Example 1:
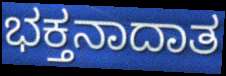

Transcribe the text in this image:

ಭಕ್ತನಾದಾತ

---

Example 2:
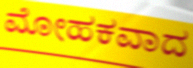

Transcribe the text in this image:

ಮೋಹಕವಾದ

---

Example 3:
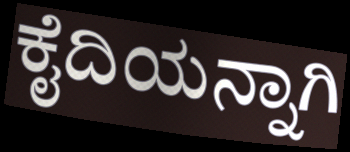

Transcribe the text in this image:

ಕೈದಿಯನ್ನಾಗಿ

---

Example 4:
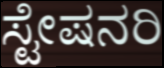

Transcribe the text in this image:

ಸ್ಟೇಷನರಿ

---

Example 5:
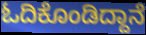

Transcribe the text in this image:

ಓದಿಕೊಂಡಿದ್ದಾನೆ